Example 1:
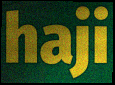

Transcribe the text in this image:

haji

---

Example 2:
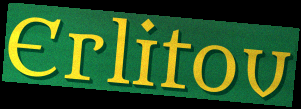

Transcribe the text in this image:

Erlitou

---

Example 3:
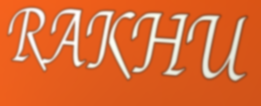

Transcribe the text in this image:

RAKHU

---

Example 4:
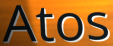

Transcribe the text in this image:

Atos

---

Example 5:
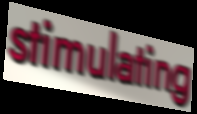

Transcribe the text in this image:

stimulating